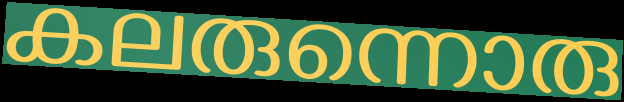
കലരുന്നൊരു